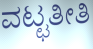
ವಟ್ಟತೀತಿ